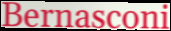
Bernasconi